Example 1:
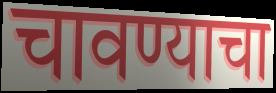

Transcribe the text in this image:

चावण्याचा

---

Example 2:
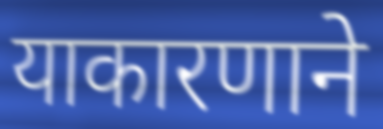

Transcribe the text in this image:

याकारणाने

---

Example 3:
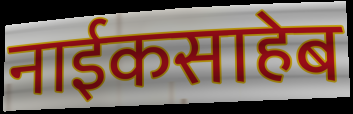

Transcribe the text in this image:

नाईकसाहेब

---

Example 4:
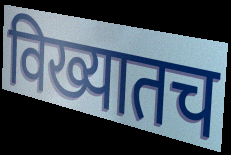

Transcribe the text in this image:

विख्यातच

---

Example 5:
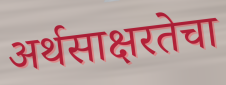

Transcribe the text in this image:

अर्थसाक्षरतेचा